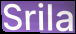
Srila